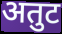
अतुट